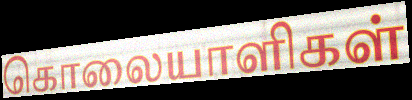
கொலையாளிகள்